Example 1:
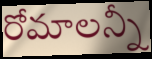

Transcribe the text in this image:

రోమాలన్నీ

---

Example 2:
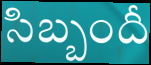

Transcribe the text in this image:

సిబ్బందీ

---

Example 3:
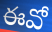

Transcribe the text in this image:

ఈవో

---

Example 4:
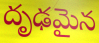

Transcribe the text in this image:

దృఢమైన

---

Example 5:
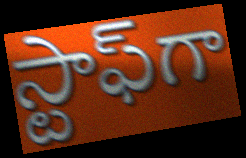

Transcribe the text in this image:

స్టాఫ్‌గా